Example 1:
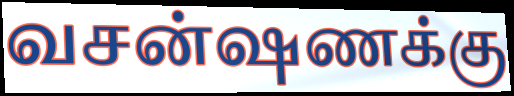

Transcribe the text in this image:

வசன்ஷணக்கு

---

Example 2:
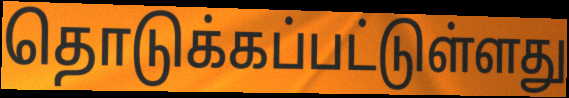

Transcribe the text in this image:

தொடுக்கப்பட்டுள்ளது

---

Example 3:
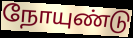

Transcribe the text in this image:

நோயுண்டு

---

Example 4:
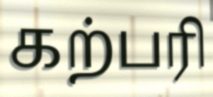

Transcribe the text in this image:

கற்பரி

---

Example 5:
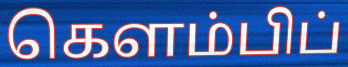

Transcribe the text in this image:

கௌம்பிப்